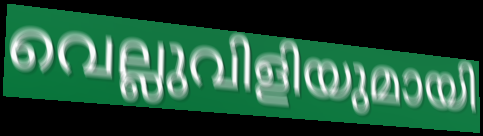
വെല്ലുവിളിയുമായി